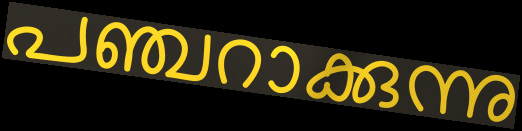
പഞ്ചറാക്കുന്നു